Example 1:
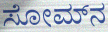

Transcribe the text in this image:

ಸೋಮ್‍ನ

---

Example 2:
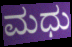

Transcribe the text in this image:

ಮಧು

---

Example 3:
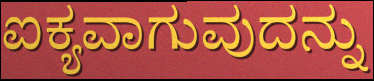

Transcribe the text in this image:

ಐಕ್ಯವಾಗುವುದನ್ನು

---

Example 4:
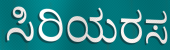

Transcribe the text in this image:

ಸಿರಿಯರಸ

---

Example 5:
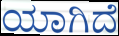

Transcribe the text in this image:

ಯಾಗಿದೆ